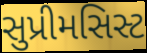
સુપ્રીમસિસ્ટ